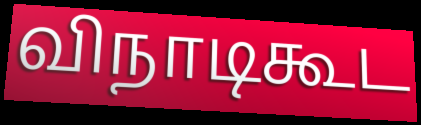
விநாடிகூட